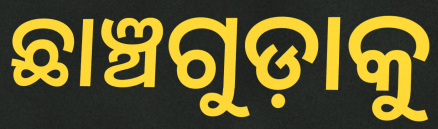
ଛାଞ୍ଚଗୁଡ଼ାକୁ